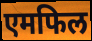
एमफिल